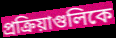
প্রক্রিয়াগুলিকে